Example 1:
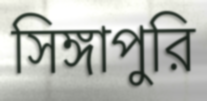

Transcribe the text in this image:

সিঙ্গাপুরি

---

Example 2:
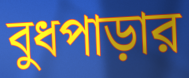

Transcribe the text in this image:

বুধপাড়ার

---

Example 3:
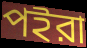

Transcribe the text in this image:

পইরা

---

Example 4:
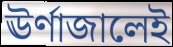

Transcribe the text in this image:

ঊর্ণাজালেই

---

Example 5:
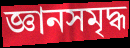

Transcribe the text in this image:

জ্ঞানসমৃদ্ধ